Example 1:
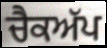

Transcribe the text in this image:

ਚੈਕਅੱਪ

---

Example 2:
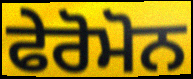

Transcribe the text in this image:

ਫੇਰੋਮੋਨ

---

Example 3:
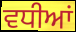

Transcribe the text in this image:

ਵਧੀਆਂ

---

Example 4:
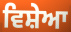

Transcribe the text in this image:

ਵਿਸ਼ੇਆ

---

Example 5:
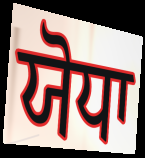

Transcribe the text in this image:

ਯੋਧਾ